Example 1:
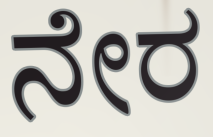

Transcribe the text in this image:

ನೇರ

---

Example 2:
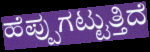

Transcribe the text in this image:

ಹೆಪ್ಪುಗಟ್ಟುತ್ತಿದೆ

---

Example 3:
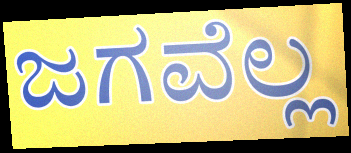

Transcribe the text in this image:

ಜಗವೆಲ್ಲ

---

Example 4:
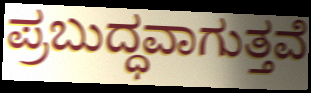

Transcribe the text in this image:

ಪ್ರಬುದ್ಧವಾಗುತ್ತವೆ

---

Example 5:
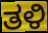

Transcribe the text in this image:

ತಳಿ